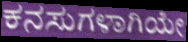
ಕನಸುಗಳಾಗಿಯೇ